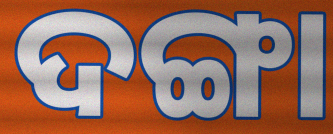
ଦଙ୍ଗା